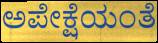
ಅಪೇಕ್ಷೆಯಂತೆ